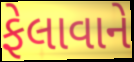
ફેલાવાને